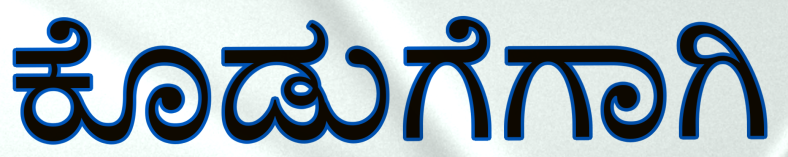
ಕೊಡುಗೆಗಾಗಿ